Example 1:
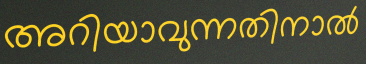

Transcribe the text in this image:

അറിയാവുന്നതിനാൽ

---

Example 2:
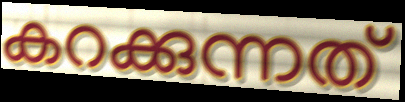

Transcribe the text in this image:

കറക്കുന്നത്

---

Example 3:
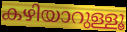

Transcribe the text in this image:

കഴിയാറുള്ളൂ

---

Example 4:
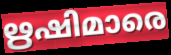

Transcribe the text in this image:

ഋഷിമാരെ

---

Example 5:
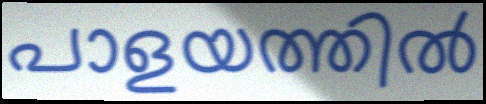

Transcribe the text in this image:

പാളയത്തിൽ